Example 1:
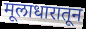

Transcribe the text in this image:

मूलाधारातून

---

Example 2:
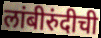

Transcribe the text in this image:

लांबीरुंदीची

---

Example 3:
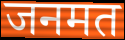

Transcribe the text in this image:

जनमत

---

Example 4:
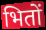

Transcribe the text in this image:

भितों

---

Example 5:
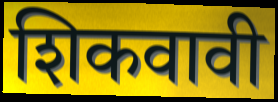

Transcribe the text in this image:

शिकवावी